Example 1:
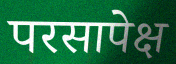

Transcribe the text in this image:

परसापेक्ष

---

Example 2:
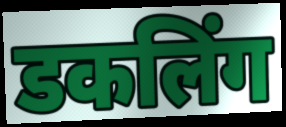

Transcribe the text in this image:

डकलिंग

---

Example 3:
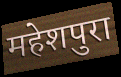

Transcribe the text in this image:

महेशपुरा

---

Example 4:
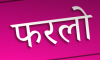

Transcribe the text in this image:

फरलो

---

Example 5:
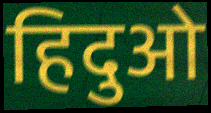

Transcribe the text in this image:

हिदुओ